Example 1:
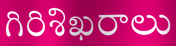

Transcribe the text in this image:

గిరిశిఖరాలు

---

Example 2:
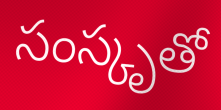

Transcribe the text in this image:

సంస్కృతో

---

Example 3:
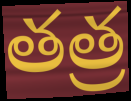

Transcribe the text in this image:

తత్ర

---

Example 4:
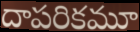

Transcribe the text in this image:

దాపరికమూ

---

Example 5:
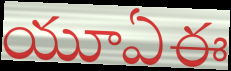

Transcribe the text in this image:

యూఏఈ